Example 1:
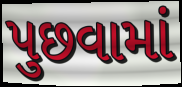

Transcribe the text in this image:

પુછવામાં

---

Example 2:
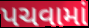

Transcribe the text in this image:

પચવામાં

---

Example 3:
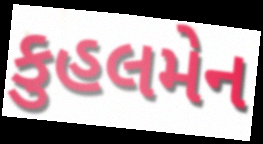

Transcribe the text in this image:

કુહલમેન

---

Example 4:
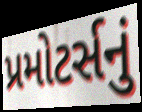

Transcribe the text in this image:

પ્રમોટર્સનું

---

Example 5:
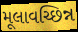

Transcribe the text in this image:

મૂલાવચ્છિન્ન